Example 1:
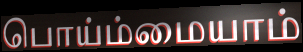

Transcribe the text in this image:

பொய்ம்மையாம்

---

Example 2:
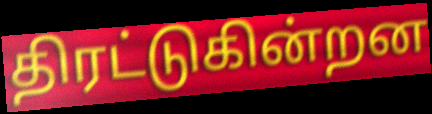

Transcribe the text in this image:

திரட்டுகின்றன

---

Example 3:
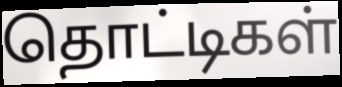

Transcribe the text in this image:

தொட்டிகள்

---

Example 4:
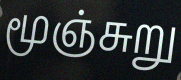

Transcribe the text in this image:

மூஞ்சுறு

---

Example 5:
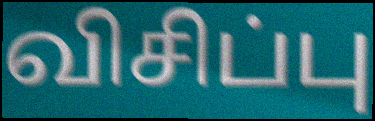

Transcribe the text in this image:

விசிப்பு